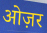
ओज़र